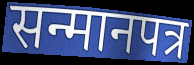
सन्मानपत्र